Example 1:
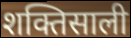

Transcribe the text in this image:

शक्तिसाली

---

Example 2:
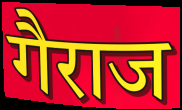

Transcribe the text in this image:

गैराज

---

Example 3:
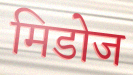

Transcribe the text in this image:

मिडोज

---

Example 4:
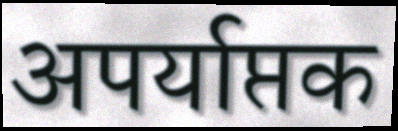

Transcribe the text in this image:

अपर्याप्तक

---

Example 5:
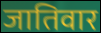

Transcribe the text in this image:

जातिवार